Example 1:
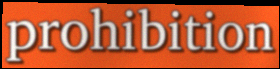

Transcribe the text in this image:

prohibition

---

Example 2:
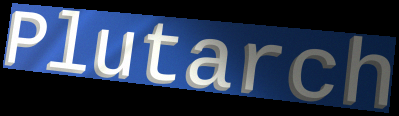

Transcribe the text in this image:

Plutarch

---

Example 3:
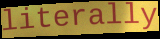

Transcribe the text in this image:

literally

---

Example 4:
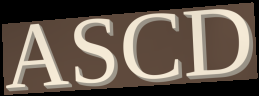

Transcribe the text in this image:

ASCD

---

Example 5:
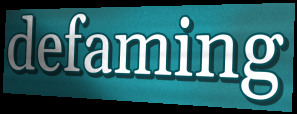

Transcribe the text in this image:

defaming